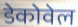
डेकोवेल